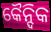
କୈନ୍ଦିକ